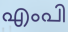
എംപി